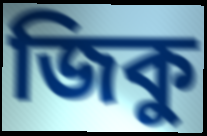
জিকু